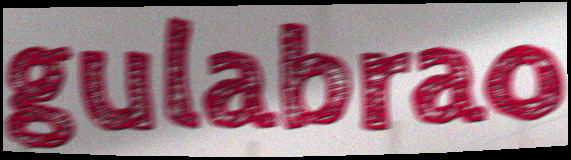
gulabrao